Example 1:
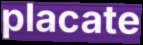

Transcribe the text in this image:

placate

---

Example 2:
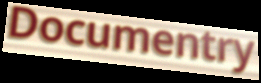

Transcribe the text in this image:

Documentry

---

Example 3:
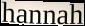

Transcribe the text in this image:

hannah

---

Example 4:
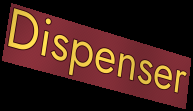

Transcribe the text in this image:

Dispenser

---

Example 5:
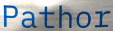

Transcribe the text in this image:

Pathor